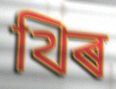
থিৰ